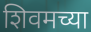
शिवमच्या